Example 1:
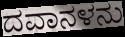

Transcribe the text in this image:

ದವಾನಳನು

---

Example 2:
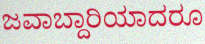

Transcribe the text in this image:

ಜವಾಬ್ದಾರಿಯಾದರೂ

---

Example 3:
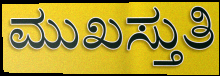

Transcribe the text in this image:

ಮುಖಸ್ತುತಿ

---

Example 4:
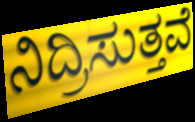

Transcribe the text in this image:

ನಿದ್ರಿಸುತ್ತವೆ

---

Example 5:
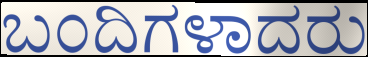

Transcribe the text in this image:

ಬಂದಿಗಳಾದರು